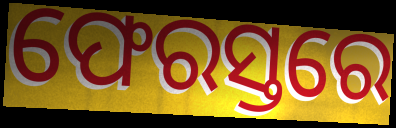
ଫେରସ୍ତରେ